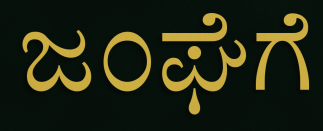
ಜಂಘೆಗೆ